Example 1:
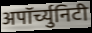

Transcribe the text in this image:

अपॉर्च्युनिटी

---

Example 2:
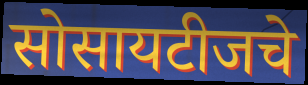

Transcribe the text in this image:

सोसायटीजचे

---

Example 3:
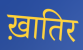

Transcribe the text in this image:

ख़ातिर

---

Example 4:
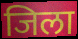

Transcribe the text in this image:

जिला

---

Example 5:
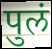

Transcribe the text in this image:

पुलं